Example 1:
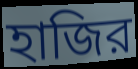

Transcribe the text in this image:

হাজির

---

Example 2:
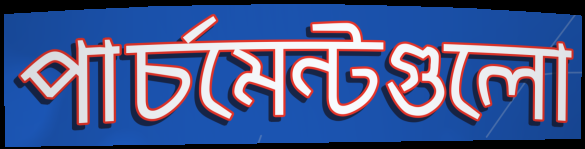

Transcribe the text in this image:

পার্চমেন্টগুলো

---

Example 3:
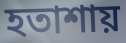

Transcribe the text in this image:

হতাশায়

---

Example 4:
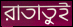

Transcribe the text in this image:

রাতাতুই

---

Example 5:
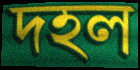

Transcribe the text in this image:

দহল